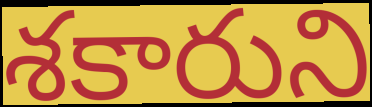
శకారుని